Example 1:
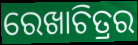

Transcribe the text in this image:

ରେଖାଚିତ୍ରର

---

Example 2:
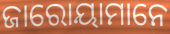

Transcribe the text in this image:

ଜାରୋୟାମାନେ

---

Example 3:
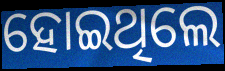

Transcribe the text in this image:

ହୋଇଥିଲେ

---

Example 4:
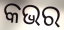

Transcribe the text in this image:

କଭର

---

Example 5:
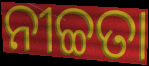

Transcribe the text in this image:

ନୀଚ୍ଚତା